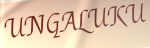
UNGALUKU